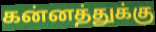
கன்னத்துக்கு